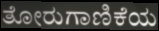
ತೋರುಗಾಣಿಕೆಯ